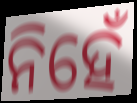
ନିହେଁ